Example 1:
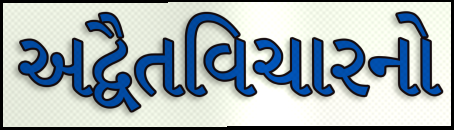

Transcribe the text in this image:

અદ્વૈતવિચારનો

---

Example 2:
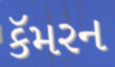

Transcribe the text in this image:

કૅમરન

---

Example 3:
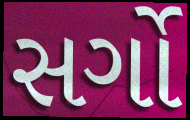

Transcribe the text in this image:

સર્ગો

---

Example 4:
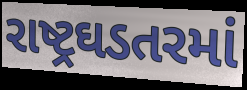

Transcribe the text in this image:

રાષ્ટ્રઘડતરમાં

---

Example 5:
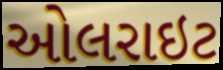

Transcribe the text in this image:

ઓલરાઇટ